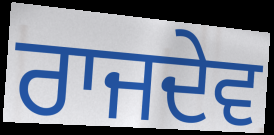
ਰਾਜਦੇਵ